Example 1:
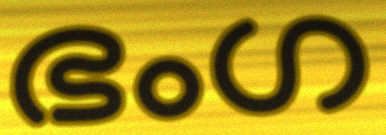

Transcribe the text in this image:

ഭംഗ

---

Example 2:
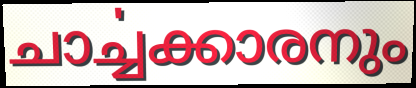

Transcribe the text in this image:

ചാൎച്ചക്കാരനും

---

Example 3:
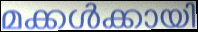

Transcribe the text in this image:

മക്കൾക്കായി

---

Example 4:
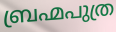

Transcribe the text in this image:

ബ്രഹ്മപുത്ര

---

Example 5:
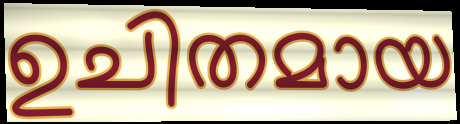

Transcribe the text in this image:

ഉചിതമായ